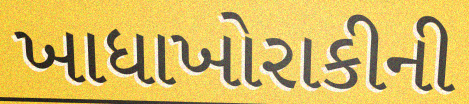
ખાધાખોરાકીની